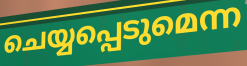
ചെയ്യപ്പെടുമെന്ന